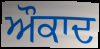
ਔਕਾਦ